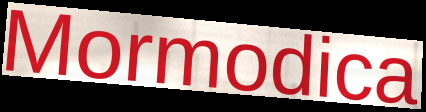
Mormodica